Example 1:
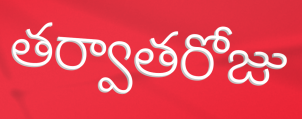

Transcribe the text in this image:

తర్వాతరోజు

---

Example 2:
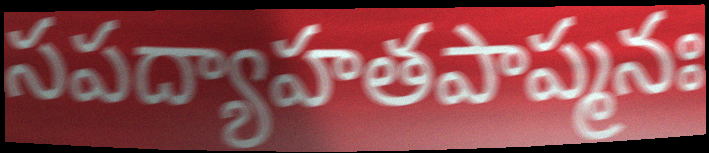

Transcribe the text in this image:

సపద్యాహతపాప్మనః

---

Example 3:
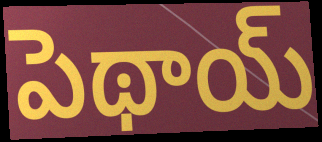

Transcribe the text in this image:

పెథాయ్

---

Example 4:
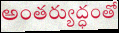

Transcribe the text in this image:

అంతర్యుద్ధంతో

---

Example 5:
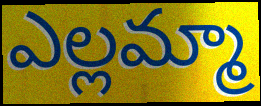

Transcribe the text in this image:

ఎల్లమ్మా